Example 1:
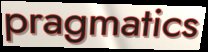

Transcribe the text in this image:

pragmatics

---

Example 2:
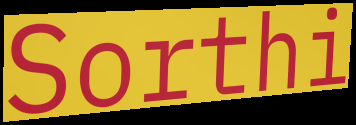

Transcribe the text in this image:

Sorthi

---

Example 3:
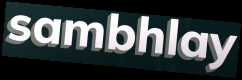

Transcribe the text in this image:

sambhlay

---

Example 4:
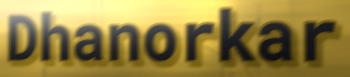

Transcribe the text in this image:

Dhanorkar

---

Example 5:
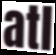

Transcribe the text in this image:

atl